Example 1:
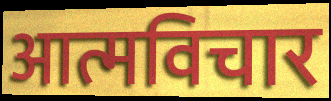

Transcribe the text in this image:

आत्मविचार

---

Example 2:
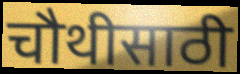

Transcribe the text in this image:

चौथीसाठी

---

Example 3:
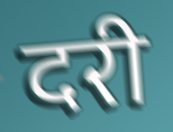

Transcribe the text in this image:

दरी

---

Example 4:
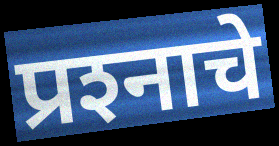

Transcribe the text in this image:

प्रश्‍नाचे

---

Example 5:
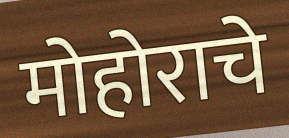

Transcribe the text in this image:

मोहोराचे